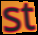
st